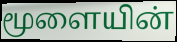
மூளையின்